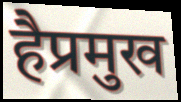
हैप्रमुख